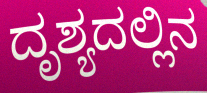
ದೃಶ್ಯದಲ್ಲಿನ